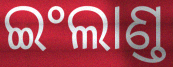
ଇଂଲାଣ୍ଡ